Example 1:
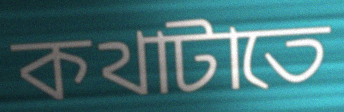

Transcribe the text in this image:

কথাটাতে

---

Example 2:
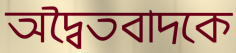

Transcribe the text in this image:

অদ্বৈতবাদকে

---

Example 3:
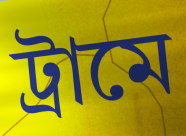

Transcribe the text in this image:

ট্রামে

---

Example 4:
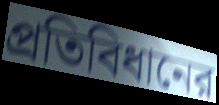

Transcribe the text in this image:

প্রতিবিধানের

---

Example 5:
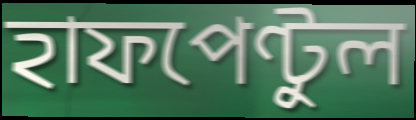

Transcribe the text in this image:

হাফপেণ্টুল